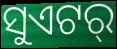
ସୁଏଟର୍